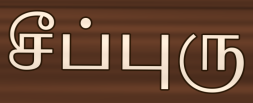
சீப்புரு